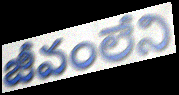
జీవంలేని